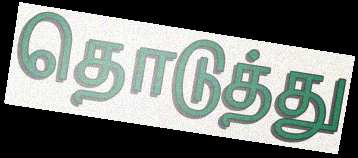
தொடுத்து